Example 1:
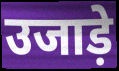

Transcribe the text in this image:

उजाड़े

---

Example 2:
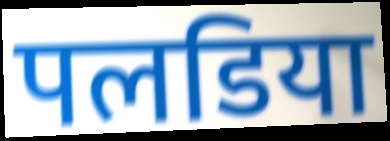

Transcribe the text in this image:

पलडिया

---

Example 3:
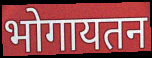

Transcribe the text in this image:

भोगायतन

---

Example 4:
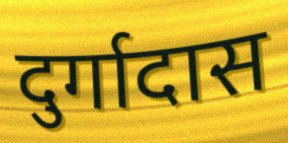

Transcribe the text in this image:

दुर्गादास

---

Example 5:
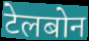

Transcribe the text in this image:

टेलबोन